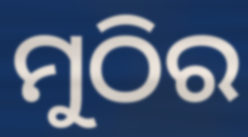
ମୁଠିର